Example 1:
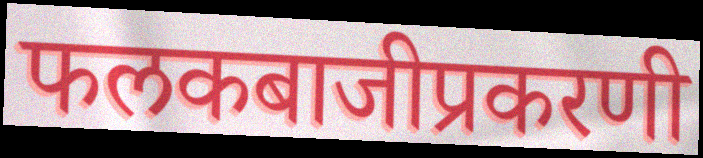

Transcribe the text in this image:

फलकबाजीप्रकरणी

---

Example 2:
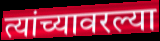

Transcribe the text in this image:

त्यांच्यावरल्या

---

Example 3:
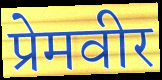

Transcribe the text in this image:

प्रेमवीर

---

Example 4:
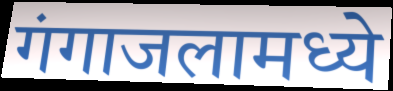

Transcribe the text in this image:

गंगाजलामध्ये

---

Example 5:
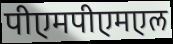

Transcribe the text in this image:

पीएमपीएमएल